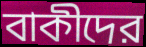
বাকীদের